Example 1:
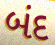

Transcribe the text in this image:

બંદ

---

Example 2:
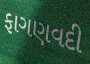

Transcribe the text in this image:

ફાગણવદી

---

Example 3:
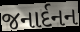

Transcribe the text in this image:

જનાર્દનન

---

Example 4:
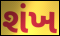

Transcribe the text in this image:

શંખ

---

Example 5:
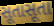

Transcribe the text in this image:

સૂતાસૂતા